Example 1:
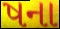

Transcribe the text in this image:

ષના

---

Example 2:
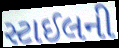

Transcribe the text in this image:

સ્ટાઈલની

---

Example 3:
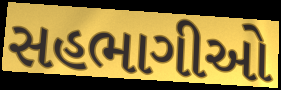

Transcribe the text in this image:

સહભાગીઓ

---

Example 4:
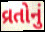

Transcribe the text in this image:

વ્રતોનું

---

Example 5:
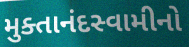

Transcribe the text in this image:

મુક્તાનંદસ્વામીનો